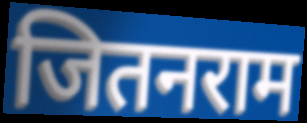
जितनराम